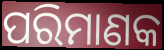
ପରିମାଣକ